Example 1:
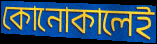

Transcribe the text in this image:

কোনোকালেই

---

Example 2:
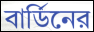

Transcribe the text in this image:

বার্ডিনের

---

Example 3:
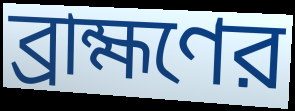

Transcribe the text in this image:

ব্রাহ্মণের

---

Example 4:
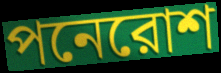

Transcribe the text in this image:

পনেরোশ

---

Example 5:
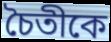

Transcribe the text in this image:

চৈতীকে